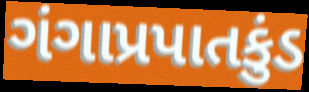
ગંગાપ્રપાતકુંડ